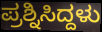
ಪ್ರಶ್ನಿಸಿದ್ದಳು